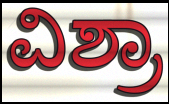
ವಿಶ್ರಾ